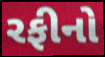
રફીનો